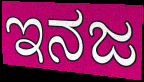
ಇನಜ